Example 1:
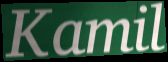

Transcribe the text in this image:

Kamil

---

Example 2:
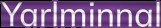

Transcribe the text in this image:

Yarlminnal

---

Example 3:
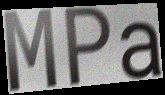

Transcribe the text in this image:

MPa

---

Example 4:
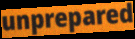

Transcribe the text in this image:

unprepared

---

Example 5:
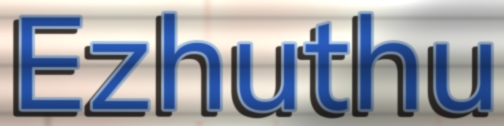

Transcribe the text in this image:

Ezhuthu